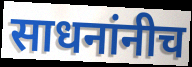
साधनांनीच